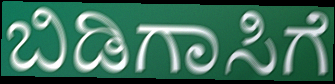
ಬಿಡಿಗಾಸಿಗೆ